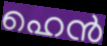
ഹെൻ